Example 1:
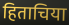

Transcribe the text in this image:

हिताचिया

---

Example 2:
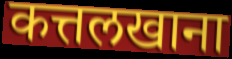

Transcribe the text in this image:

कत्तलखाना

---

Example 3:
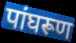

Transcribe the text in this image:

पांघरूण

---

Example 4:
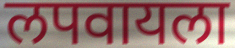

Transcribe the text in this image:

लपवायला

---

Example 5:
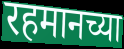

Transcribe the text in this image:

रहमानच्या